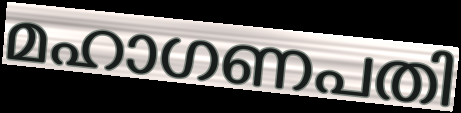
മഹാഗണപതി